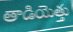
తాడియెత్తు